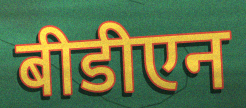
बीडीएन